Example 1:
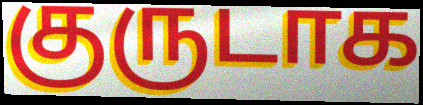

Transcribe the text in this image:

குருடாக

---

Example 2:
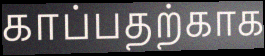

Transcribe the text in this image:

காப்பதற்காக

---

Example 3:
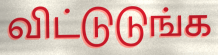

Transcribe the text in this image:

விட்டுடுங்க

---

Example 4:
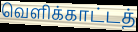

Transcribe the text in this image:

வெளிக்காட்டத்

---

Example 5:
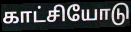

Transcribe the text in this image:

காட்சியோடு